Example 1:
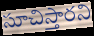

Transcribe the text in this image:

సూచిస్తారని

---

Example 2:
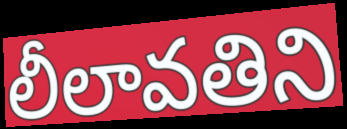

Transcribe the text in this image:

లీలావతిని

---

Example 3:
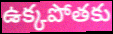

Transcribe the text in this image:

ఉక్కపోతకు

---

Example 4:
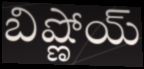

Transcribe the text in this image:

బిష్ణోయ్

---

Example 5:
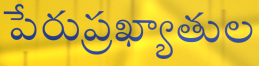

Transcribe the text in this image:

పేరుప్రఖ్యాతుల